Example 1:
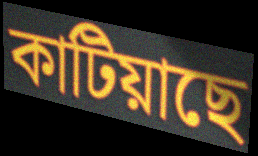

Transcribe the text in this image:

কাটিয়াছে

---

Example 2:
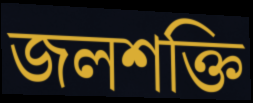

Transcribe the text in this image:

জলশক্তি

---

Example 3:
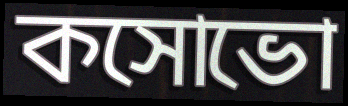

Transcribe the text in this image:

কসোভো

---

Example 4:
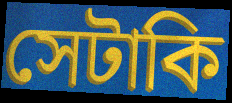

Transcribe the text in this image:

সেটাকি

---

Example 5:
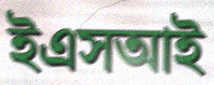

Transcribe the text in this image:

ইএসআই